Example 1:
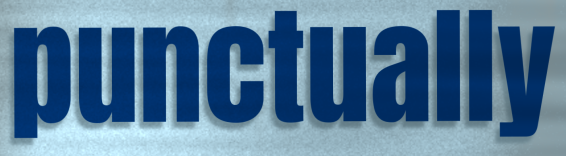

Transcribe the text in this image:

punctually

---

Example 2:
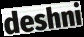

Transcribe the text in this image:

deshni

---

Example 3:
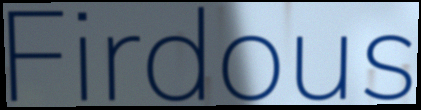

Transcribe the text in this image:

Firdous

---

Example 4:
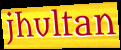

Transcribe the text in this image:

jhultan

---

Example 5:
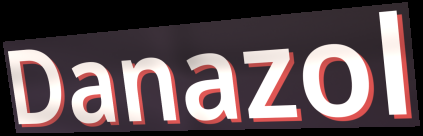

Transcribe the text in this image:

Danazol